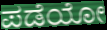
ಪಡೆಯೋ